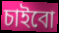
চাইবো